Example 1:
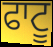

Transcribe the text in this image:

ਫਾਟੂ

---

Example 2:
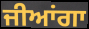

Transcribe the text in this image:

ਜੀਆਂਗਾ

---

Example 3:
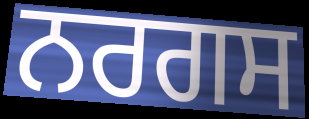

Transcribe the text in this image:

ਨਰਗਸ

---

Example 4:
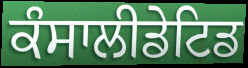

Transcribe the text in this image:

ਕੰਸਾਲੀਡੇਟਿਡ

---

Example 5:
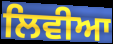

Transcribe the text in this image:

ਲਿਵੀਆ